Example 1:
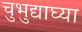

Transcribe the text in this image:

चुभुद्याघ्या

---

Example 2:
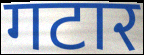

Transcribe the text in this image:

गटार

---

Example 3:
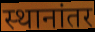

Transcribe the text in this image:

स्थानांतर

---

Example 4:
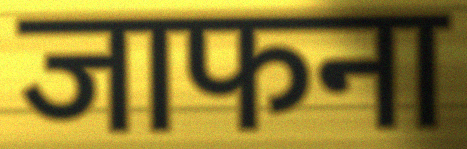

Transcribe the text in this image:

जाफना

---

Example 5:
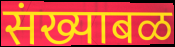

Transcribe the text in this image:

संख्याबळ